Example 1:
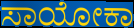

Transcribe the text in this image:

ಸಾಯೋಕಾ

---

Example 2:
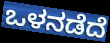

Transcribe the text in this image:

ಒಳನಡೆದೆ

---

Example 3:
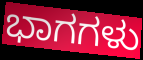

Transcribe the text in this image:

ಭಾಗಗಳು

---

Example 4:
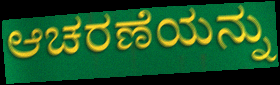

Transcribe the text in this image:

ಆಚರಣೆಯನ್ನು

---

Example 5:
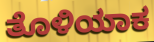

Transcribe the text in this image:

ತೊಳಿಯಾಕ